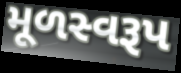
મૂળસ્વરૂપ